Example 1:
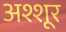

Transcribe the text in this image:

अश्शूर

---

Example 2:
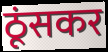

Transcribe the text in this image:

ठूंसकर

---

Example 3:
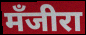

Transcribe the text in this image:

मँजीरा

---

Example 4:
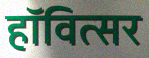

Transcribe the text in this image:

हॉवित्सर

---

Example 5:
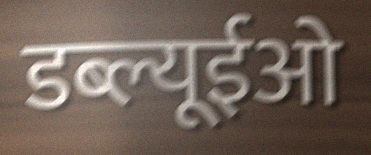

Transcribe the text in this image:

डब्ल्यूईओ